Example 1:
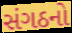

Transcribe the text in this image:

સંગઠનો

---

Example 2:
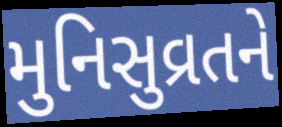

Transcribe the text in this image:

મુનિસુવ્રતને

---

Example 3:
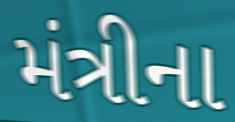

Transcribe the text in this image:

મંત્રીના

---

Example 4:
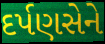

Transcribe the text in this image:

દર્પણસેને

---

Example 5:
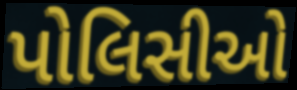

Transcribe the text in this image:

પોલિસીઓ